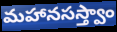
మహానసస్త్వాం